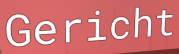
Gericht